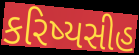
કરિષ્યસીહ